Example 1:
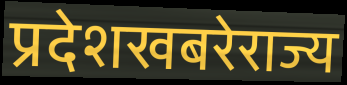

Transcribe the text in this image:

प्रदेशखबरेराज्य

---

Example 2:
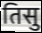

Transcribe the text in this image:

तिसु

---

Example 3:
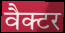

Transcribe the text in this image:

वैक्टर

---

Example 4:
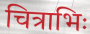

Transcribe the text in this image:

चित्राभिः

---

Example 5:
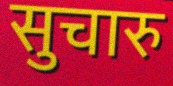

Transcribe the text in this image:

सुचारु